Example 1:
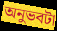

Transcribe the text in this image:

অনুভবটা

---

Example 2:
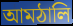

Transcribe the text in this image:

আমঠালি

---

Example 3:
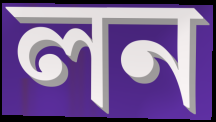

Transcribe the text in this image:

লন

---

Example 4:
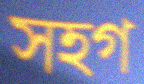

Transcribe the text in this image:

সহগ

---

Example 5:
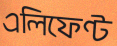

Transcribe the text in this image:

এলিফেণ্ট